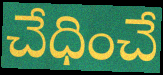
చేధించే